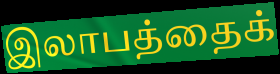
இலாபத்தைக்